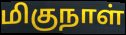
மிகுநாள்